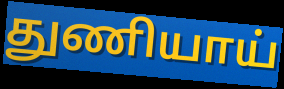
துணியாய்